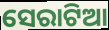
ସେରାଟିଆ